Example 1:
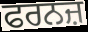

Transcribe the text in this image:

ਫਰਨਜ਼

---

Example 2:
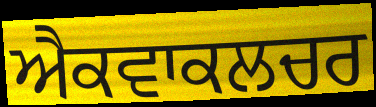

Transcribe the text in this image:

ਐਕਵਾਕਲਚਰ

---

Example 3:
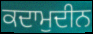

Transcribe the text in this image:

ਕਦਾਮੁਦੀਨ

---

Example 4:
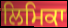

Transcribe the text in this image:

ਲਿਮਿਕਾ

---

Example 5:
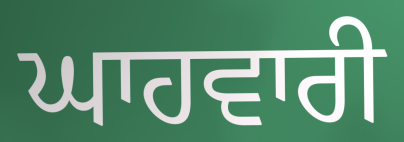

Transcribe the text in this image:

ਘਾਹਵਾਰੀ